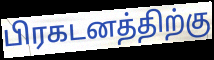
பிரகடனத்திற்கு